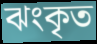
ঝংকৃত